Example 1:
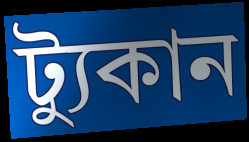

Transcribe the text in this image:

ট্যুকান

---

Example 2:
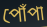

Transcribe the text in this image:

পোঁপা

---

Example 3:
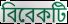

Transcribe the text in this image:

বিবেকটি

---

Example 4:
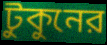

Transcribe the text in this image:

টুকুনের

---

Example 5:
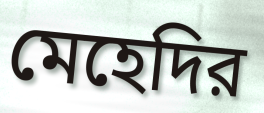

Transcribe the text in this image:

মেহেদির